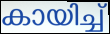
കായിച്ച്